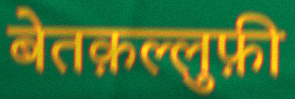
बेतक़ल्लुफ़ी